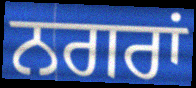
ਨਗਰਾਂ